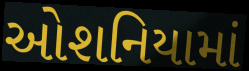
ઓશનિયામાં